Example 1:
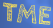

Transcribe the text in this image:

TME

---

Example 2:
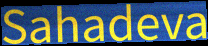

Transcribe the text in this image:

Sahadeva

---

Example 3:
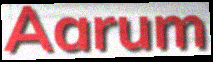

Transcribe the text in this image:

Aarum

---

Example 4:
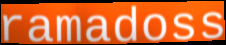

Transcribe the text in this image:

ramadoss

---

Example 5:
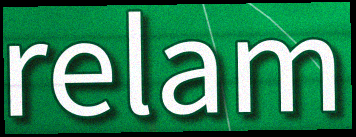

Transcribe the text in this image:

relam